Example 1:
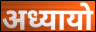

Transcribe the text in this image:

अध्यायो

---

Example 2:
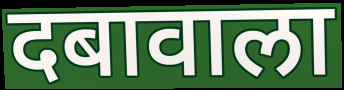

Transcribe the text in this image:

दबावाला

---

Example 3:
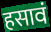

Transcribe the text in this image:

हसावं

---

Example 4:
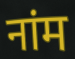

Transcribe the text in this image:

नांम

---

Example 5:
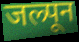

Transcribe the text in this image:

जल्पून